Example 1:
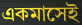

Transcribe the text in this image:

একমাসেই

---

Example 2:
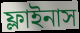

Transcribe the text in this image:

ফ্লাইনাস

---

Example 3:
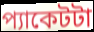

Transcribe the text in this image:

প্যাকেটটা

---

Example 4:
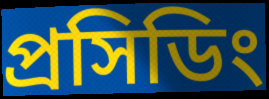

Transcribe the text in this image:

প্রসিডিং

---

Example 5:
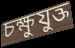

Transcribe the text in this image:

চক্ষুযুক্ত